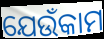
ଯେଉଁକାମ